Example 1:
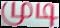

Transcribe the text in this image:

முடி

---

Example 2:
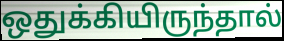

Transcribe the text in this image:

ஒதுக்கியிருந்தால்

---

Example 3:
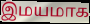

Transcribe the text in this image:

இமயமாக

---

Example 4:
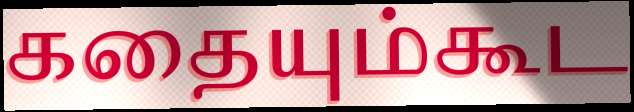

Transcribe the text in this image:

கதையும்கூட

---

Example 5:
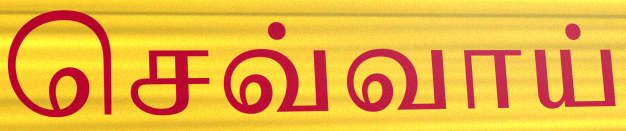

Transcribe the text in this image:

செவ்வாய்